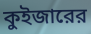
কুইজারের